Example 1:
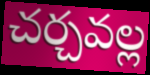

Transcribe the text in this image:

చర్చవల్ల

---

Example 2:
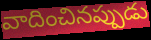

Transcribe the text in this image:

వాదించినప్పుడు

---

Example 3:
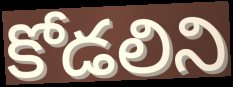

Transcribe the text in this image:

కోడలిని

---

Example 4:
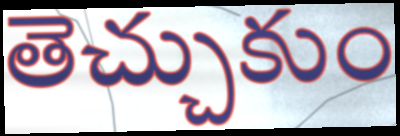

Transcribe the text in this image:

తెచ్చుకుం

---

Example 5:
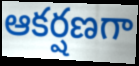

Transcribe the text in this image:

ఆకర్షణగా